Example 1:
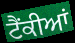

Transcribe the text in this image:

ਟੈਂਕੀਆਂ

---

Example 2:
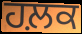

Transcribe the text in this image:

ਹਲ਼ਕ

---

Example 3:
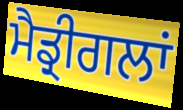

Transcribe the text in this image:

ਮੈਡ੍ਰੀਗਲਾਂ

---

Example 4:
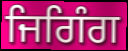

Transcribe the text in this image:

ਜਿਗਿੰਗ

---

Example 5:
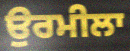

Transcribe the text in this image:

ਉਰਮੀਲਾ